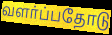
வளர்ப்பதோடு